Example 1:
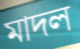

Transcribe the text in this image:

মাদল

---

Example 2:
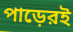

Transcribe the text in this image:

পাড়েরই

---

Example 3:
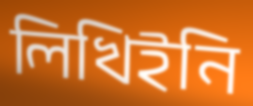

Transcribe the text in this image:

লিখিইনি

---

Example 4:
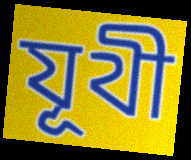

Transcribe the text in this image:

যূথী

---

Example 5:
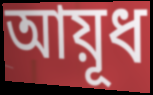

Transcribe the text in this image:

আয়ূধ